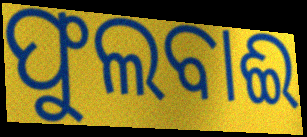
ଫୁଲବାଈ